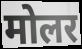
मोलर